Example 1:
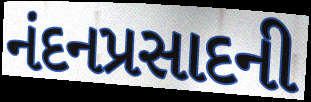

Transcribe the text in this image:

નંદનપ્રસાદની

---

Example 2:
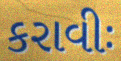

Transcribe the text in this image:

કરાવીઃ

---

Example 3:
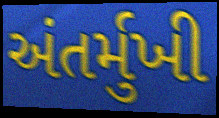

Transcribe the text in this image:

અંતર્મુખી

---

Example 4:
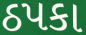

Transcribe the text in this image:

ઠપકા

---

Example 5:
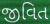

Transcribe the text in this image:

જીવિત